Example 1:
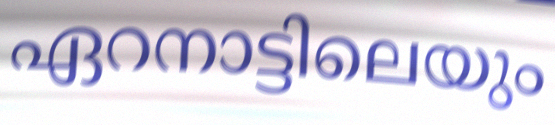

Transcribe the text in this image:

ഏറനാട്ടിലെയും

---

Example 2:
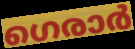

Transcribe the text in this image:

ഗെരാർ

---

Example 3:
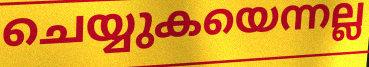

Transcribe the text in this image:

ചെയ്യുകയെന്നല്ല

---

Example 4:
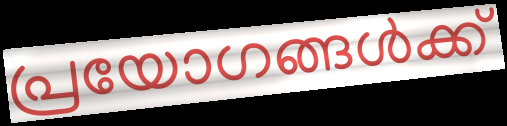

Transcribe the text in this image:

പ്രയോഗങ്ങൾക്ക്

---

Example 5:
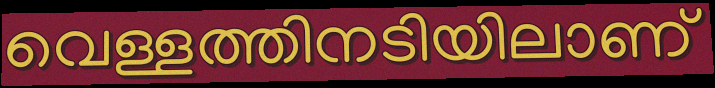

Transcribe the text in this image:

വെള്ളത്തിനടിയിലാണ്